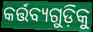
କର୍ତ୍ତବ୍ୟଗୁଡ଼ିକୁ